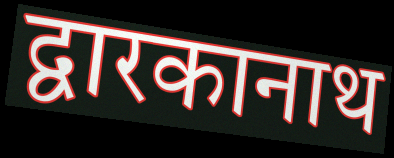
द्वारकानाथ